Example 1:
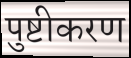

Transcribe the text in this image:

पुष्टीकरण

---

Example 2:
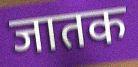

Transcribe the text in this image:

जातक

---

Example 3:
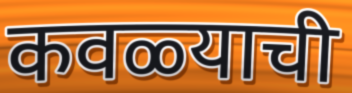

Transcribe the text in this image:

कवळ्याची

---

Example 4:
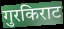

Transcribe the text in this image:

गुरकिराट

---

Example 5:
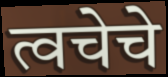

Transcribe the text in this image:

त्वचेचे